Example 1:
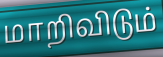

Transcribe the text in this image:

மாறிவிடும்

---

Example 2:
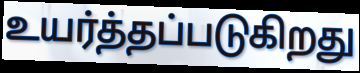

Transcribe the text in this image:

உயர்த்தப்படுகிறது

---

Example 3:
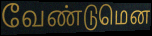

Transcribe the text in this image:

வேண்டுமென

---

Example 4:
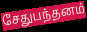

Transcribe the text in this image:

சேதுபந்தனம்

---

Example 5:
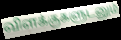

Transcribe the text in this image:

விளக்குகளுடனும்